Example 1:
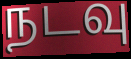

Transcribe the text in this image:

நடவு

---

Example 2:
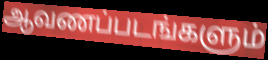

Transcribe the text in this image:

ஆவணப்படங்களும்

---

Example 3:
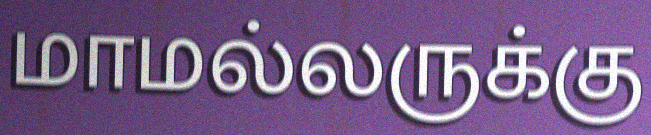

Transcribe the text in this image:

மாமல்லருக்கு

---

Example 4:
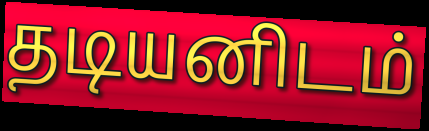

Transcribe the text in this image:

தடியனிடம்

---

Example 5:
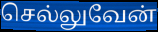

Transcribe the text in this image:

செல்லுவேன்